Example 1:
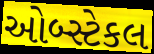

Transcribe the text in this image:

ઓબ્સ્ટેકલ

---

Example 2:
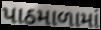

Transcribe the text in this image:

પાઠમાળામાં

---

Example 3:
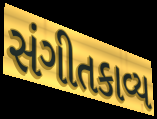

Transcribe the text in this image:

સંગીતકાવ્ય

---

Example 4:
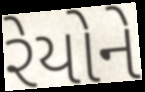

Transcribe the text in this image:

રેયોને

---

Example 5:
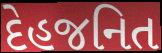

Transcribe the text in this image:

દેહજનિત